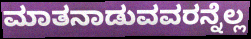
ಮಾತನಾಡುವವರನ್ನೆಲ್ಲ